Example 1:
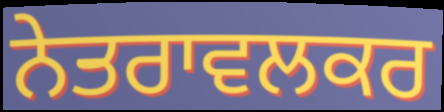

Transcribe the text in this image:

ਨੇਤਰਾਵਲਕਰ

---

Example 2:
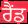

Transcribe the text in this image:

ਰੈਂਡ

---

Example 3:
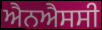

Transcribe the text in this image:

ਐਨਐਸਸੀ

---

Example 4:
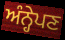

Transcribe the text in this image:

ਅੰਨ੍ਹੇਪਣ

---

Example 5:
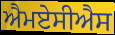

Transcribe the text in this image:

ਐਮਏਸੀਐਸ